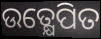
ଉତ୍କ୍ଷେପିତ